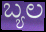
ಬ್ಯಲ